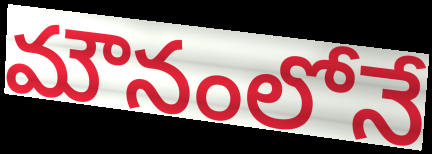
మౌనంలోనే